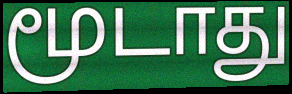
மூடாது